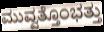
ಮುವ್ವತ್ತೊಂಭತ್ತು